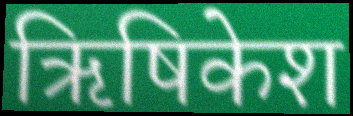
ऋिषिकेश